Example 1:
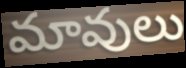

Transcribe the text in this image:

మావులు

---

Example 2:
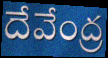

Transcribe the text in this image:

దేవేంద్ర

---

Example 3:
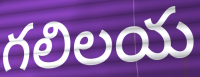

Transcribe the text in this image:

గలిలయ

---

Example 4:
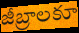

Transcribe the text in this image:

జీబ్రాలకూ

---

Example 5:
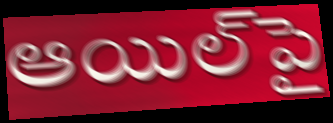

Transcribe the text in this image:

ఆయిల్‌పై